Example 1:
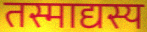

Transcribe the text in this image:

तस्माद्यस्य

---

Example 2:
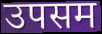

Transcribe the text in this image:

उपसम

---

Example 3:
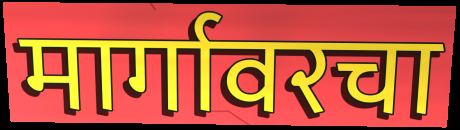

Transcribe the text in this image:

मार्गावरचा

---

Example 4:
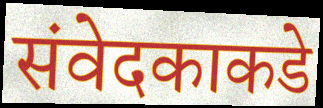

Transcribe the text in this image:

संवेदकाकडे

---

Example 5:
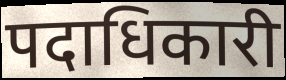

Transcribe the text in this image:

पदाधिकारी